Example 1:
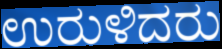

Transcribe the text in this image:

ಉರುಳಿದರು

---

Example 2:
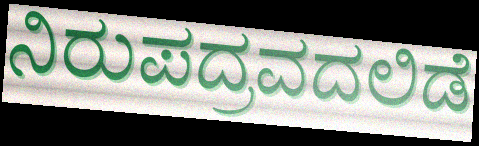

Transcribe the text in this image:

ನಿರುಪದ್ರವದಲಿಡೆ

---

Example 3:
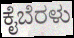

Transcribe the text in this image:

ಕೈಬೆರಳು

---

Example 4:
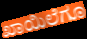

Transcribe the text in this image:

ಖಾಯಿಲೆಗೂ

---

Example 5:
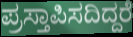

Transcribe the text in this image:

ಪ್ರಸ್ತಾಪಿಸದಿದ್ದರೆ